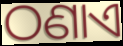
ଠଣାଏ